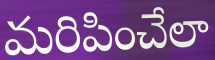
మరిపించేలా